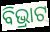
ବିଭ୍ରାଟ